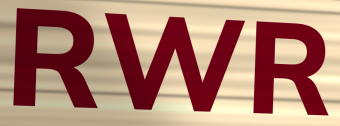
RWR